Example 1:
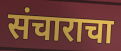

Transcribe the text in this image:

संचाराचा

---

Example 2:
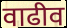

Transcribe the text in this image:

वाढीव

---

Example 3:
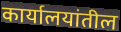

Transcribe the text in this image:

कार्यालयांतील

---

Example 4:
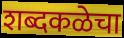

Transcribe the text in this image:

शब्दकळेचा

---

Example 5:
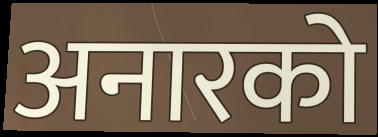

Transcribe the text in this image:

अनारको